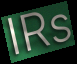
IRs